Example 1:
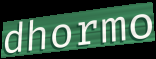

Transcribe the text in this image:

dhormo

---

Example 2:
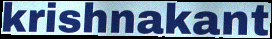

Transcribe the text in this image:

krishnakant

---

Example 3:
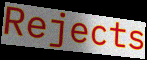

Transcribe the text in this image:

Rejects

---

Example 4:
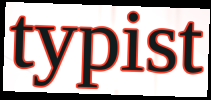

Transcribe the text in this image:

typist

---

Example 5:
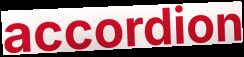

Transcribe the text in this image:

accordion